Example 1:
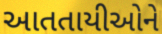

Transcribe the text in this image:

આતતાયીઓને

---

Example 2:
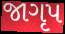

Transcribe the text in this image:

જાગૃપ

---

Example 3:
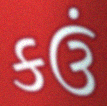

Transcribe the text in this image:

કઉં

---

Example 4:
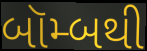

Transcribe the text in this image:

બૉમ્બથી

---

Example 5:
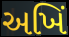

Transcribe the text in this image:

અખિં